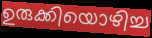
ഉരുക്കിയൊഴിച്ച